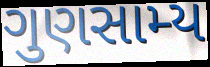
ગુણસામ્ય